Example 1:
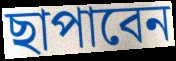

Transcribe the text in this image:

ছাপাবেন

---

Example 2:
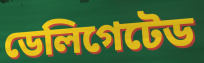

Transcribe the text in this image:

ডেলিগেটেড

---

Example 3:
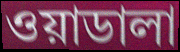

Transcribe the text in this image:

ওয়াডালা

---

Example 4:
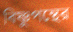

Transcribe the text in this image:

বিষ্ণুপন্থের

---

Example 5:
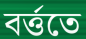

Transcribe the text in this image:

বর্ত্ততে